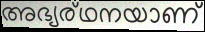
അഭ്യര്ഥനയാണ്